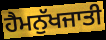
ਹੈਮਨੁੱਖਜਾਤੀ